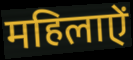
महिलाऐं